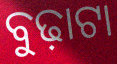
ବୁଢ଼ାଟା